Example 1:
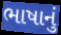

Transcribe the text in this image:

ભાષાનું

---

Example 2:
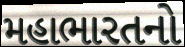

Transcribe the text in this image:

મહાભારતનો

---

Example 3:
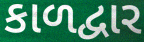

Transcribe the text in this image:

કાળદ્વાર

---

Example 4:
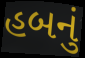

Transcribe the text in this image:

હબનું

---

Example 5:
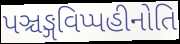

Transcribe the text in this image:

પઞ્ચઙ્ગવિપ્પહીનોતિ